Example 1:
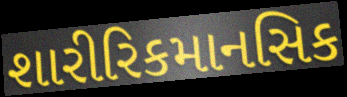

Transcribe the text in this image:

શારીરિકમાનસિક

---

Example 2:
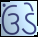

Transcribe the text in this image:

ઉંડે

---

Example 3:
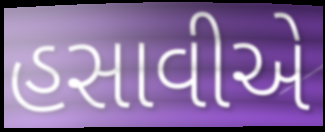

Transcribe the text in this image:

હસાવીએ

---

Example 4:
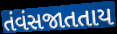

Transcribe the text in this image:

તંવંસજાતતાય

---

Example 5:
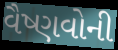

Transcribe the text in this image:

વૈષ્ણવોની